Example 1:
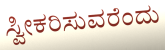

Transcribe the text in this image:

ಸ್ವೀಕರಿಸುವರೆಂದು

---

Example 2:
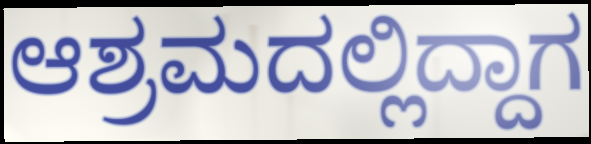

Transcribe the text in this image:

ಆಶ್ರಮದಲ್ಲಿದ್ದಾಗ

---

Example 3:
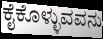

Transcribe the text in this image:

ಕೈಕೊಳ್ಳುವವನು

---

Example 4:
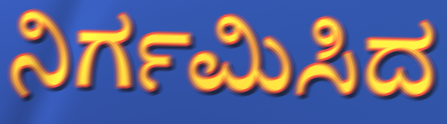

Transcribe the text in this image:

ನಿರ್ಗಮಿಸಿದ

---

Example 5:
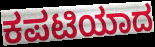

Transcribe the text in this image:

ಕಪಟಿಯಾದ